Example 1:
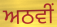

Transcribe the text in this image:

ਅਠਵੀਂ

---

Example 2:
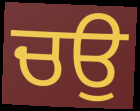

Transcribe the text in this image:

ਚਉ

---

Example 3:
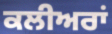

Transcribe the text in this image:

ਕਲੀਅਰਾਂ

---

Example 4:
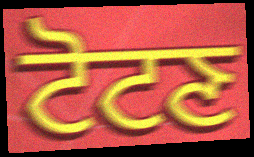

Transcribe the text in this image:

ਟੋਟਣ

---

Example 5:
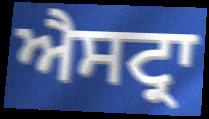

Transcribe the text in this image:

ਐਸਟ੍ਰਾ